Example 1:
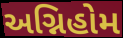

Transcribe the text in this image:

અગ્નિહોમ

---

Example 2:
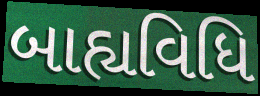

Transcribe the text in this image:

બાહ્યવિધિ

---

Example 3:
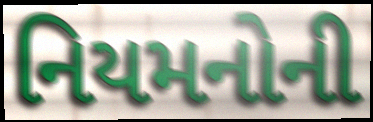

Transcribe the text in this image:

નિયમનોની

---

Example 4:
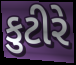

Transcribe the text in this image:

કુટીરે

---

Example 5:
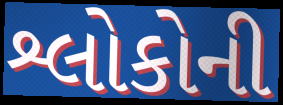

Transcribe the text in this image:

શ્લોકોની